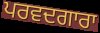
ਪਰਵਦਗਾਰਾ